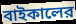
বাইকালের